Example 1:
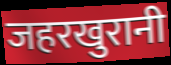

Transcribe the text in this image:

जहरखुरानी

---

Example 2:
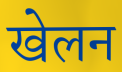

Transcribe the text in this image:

खेलन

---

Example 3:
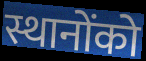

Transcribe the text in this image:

स्थानोंको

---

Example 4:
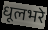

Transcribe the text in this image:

धूलभरे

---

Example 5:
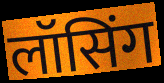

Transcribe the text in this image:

लॉसिंग